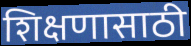
शिक्षणासाठी